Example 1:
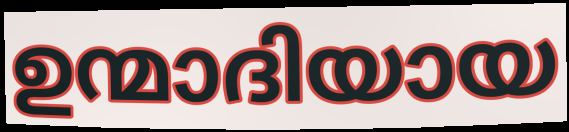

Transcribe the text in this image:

ഉന്മാദിയായ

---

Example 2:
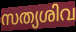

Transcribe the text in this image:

സത്യശിവ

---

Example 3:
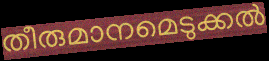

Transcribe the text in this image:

തീരുമാനമെടുക്കൽ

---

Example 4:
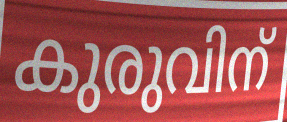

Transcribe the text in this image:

കുരുവിന്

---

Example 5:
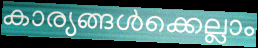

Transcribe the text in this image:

കാര്യങ്ങൾക്കെല്ലാം